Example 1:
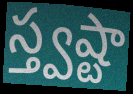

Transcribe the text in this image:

స్త్వష్టా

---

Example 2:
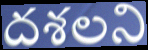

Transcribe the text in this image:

దశలని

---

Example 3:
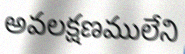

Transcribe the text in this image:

అవలక్షణములేని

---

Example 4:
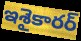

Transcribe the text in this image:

ఇశైకారర్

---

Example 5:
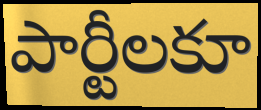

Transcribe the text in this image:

పార్టీలకూ